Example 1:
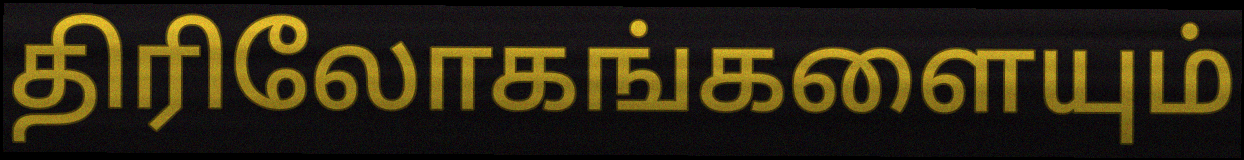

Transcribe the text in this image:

திரிலோகங்களையும்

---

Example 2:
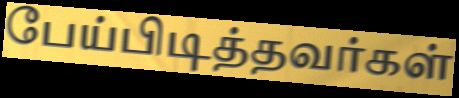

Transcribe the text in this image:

பேய்பிடித்தவர்கள்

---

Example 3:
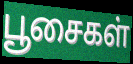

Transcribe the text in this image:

பூசைகள்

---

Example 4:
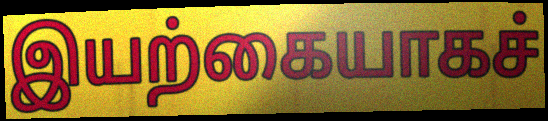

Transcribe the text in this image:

இயற்கையாகச்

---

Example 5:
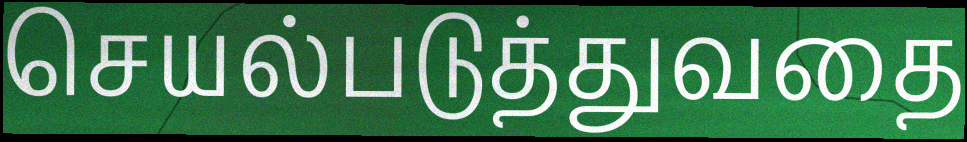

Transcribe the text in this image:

செயல்படுத்துவதை